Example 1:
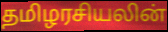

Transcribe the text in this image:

தமிழரசியலின்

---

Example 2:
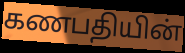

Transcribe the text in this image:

கணபதியின்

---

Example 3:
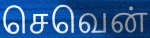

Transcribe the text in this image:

செவென்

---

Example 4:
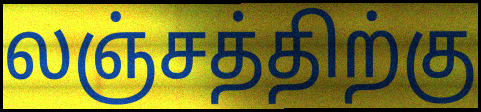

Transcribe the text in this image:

லஞ்சத்திற்கு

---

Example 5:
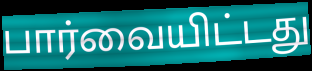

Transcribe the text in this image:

பார்வையிட்டது